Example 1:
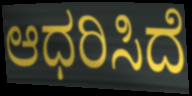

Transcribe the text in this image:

ಆಧರಿಸಿದೆ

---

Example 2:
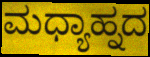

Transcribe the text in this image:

ಮಧ್ಯಾಹ್ನದ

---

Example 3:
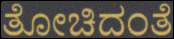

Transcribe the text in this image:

ತೋಚಿದಂತೆ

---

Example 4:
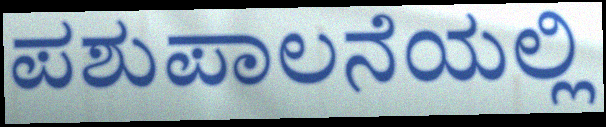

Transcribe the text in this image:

ಪಶುಪಾಲನೆಯಲ್ಲಿ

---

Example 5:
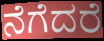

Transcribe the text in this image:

ನೆಗೆದರೆ